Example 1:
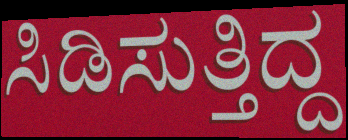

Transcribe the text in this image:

ಸಿಡಿಸುತ್ತಿದ್ದ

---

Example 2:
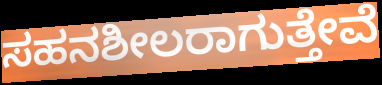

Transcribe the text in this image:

ಸಹನಶೀಲರಾಗುತ್ತೇವೆ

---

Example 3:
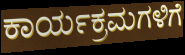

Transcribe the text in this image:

ಕಾರ್ಯಕ್ರಮಗಳಿಗೆ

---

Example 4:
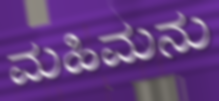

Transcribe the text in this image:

ಮಹಿಮನು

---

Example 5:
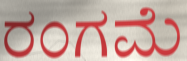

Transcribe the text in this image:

ರಂಗಮೆ